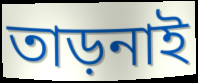
তাড়নাই